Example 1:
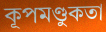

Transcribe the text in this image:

কূপমণ্ডুকতা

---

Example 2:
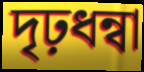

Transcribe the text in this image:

দৃঢ়ধন্বা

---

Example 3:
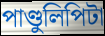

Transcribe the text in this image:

পাণ্ডুলিপিটা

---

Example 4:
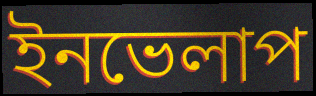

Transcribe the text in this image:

ইনভেলাপ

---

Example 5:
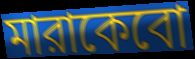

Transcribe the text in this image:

মারাকেবো